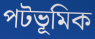
পটভূমিক